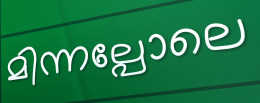
മിന്നല്പോലെ